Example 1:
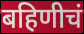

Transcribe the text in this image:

बहिणीचं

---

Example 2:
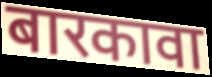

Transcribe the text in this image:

बारकावा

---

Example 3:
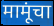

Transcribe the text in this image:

मामूंचा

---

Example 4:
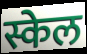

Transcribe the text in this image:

स्केल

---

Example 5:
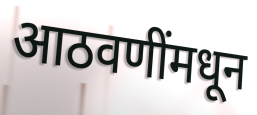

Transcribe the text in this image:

आठवणींमधून